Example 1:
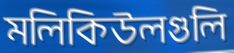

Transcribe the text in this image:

মলিকিউলগুলি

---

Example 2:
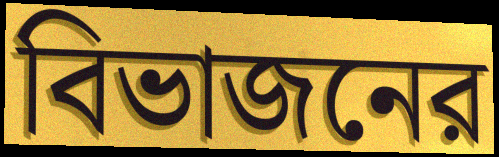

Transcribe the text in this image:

বিভাজনের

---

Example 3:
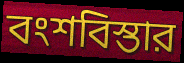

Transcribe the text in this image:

বংশবিস্তার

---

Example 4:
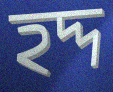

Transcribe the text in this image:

হদ্দ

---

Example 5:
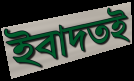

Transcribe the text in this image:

ইবাদতই